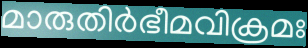
മാരുതിർഭീമവിക്രമഃ